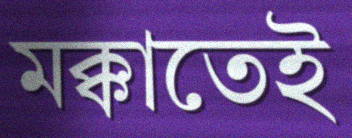
মক্কাতেই